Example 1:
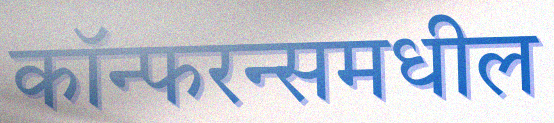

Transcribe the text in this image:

कॉन्फरन्समधील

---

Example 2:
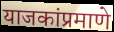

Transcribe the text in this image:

याजकांप्रमाणे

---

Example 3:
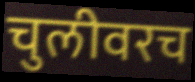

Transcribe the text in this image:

चुलीवरच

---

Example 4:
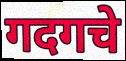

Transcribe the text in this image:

गदगचे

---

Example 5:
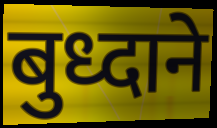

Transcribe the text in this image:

बुध्दाने